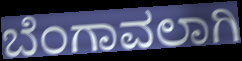
ಬೆಂಗಾವಲಾಗಿ